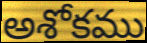
అశోకము